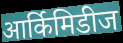
आर्किमिडीज